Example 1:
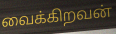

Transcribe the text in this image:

வைக்கிறவன்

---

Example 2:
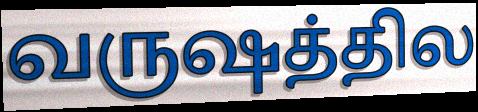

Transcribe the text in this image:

வருஷத்தில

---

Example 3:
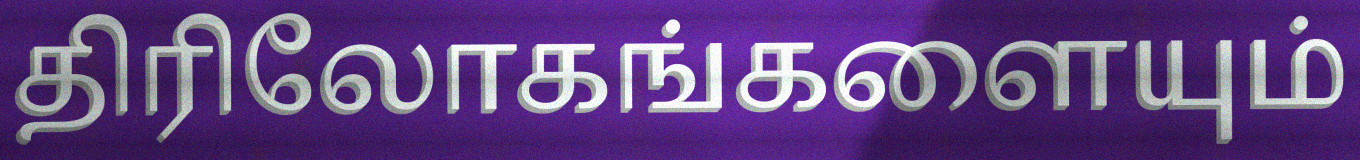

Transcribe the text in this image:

திரிலோகங்களையும்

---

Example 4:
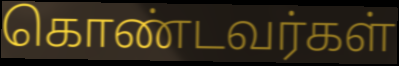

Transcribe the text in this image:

கொண்டவர்கள்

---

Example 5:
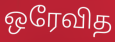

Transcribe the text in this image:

ஒரேவித